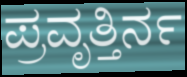
ಪ್ರವೃತ್ತಿರ್ನ